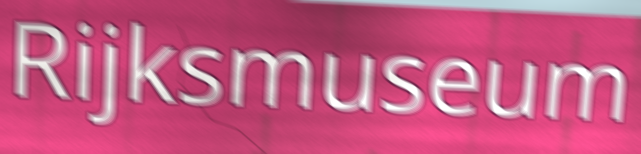
Rijksmuseum